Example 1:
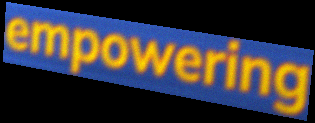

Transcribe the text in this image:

empowering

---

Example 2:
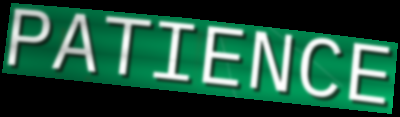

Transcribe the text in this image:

PATIENCE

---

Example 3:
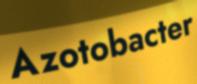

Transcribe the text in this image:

Azotobacter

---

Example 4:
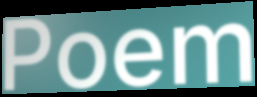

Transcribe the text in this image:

Poem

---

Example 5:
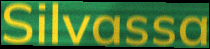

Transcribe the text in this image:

Silvassa